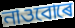
নাওবোৰে